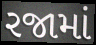
રજામાં